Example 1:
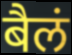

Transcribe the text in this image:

बैलं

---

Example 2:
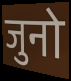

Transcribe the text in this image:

जुनो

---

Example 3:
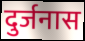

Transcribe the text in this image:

दुर्जनास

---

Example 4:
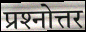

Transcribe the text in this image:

प्रश्‍नोत्तर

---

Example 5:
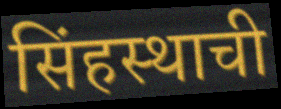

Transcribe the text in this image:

सिंहस्थाची